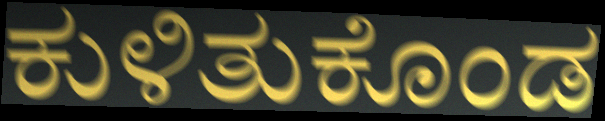
ಕುಳಿತುಕೊಂಡ